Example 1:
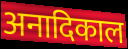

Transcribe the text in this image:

अनादिकाल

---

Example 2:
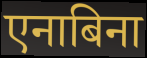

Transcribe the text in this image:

एनाबिना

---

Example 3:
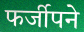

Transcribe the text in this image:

फर्जीपने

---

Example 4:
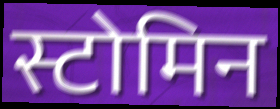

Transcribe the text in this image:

स्टोमिन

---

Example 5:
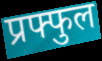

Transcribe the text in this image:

प्रफ्फुल